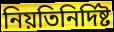
নিয়তিনির্দিষ্ট